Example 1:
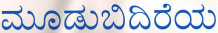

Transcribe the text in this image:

ಮೂಡುಬಿದಿರೆಯ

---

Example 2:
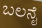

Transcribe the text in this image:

ಬಲನೈ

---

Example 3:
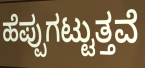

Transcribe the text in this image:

ಹೆಪ್ಪುಗಟ್ಟುತ್ತವೆ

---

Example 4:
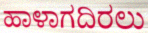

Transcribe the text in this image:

ಹಾಳಾಗದಿರಲು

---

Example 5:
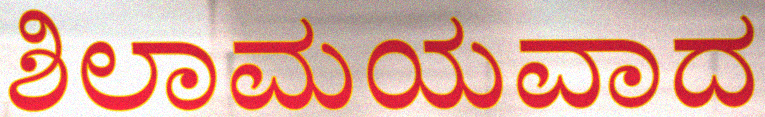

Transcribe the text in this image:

ಶಿಲಾಮಯವಾದ